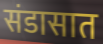
संडासात